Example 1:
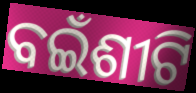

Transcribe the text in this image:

ବଇଁଶୀଟି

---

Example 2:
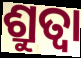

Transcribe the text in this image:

ଶ୍ରୁତ୍ଵା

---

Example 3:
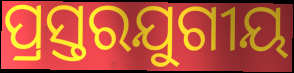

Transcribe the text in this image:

ପ୍ରସ୍ତରଯୁଗୀୟ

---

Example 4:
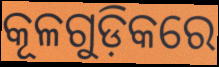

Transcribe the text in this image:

କୂଳଗୁଡ଼ିକରେ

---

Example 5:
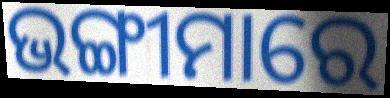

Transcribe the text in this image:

ଭଙ୍ଗୀମାରେ